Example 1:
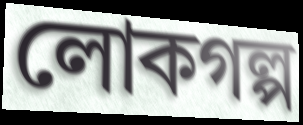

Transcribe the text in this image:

লোকগল্প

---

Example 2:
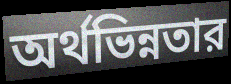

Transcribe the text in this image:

অর্থভিন্নতার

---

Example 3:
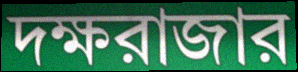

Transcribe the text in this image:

দক্ষরাজার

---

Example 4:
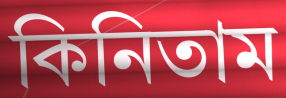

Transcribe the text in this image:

কিনিতাম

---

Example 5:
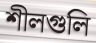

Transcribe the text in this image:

শীলগুলি